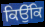
ਕਿਉੱਕਿ